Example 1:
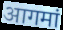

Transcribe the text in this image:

आगमां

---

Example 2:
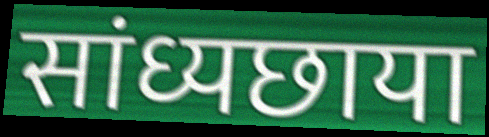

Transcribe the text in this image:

सांध्यछाया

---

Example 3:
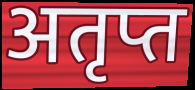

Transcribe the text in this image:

अतृप्त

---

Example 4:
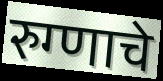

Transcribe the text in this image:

रुग्णाचे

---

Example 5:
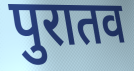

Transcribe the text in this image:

पुरातव